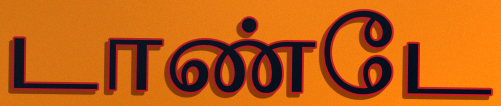
டாண்டே